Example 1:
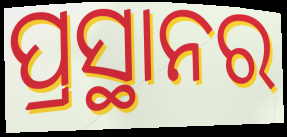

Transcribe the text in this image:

ପ୍ରସ୍ଥାନର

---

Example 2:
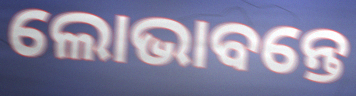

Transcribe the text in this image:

ଲୋଭାବନ୍ତେ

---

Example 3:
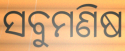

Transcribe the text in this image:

ସବୁମଣିଷ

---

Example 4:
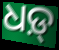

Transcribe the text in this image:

ଧଡ଼୍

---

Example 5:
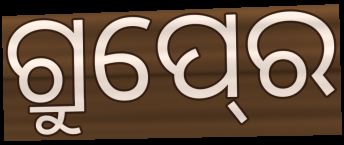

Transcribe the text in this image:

ଗ୍ରୁପ୍‍ରେ